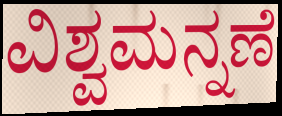
ವಿಶ್ವಮನ್ನಣೆ